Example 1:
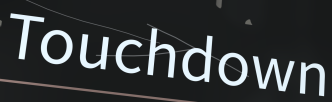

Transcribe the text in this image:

Touchdown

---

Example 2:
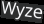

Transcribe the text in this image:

Wyze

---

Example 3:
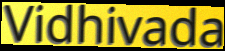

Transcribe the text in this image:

Vidhivada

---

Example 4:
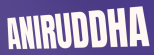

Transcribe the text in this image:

ANIRUDDHA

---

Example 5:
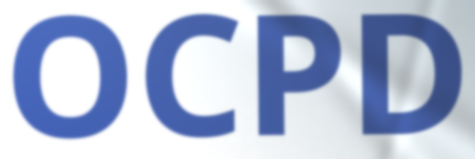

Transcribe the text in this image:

OCPD